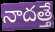
నాదత్తే